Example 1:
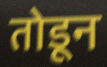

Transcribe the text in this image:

तोडून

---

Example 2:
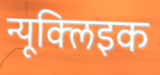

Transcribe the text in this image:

न्यूक्‍लिइक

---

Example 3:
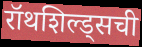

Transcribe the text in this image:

रॉथशिल्ड्सची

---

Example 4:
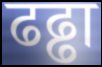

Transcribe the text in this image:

ढढ्ढा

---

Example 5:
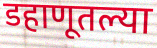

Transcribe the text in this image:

डहाणूतल्या